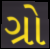
ગ્રો